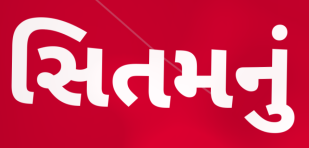
સિતમનું